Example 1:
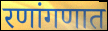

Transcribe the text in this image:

रणांगणात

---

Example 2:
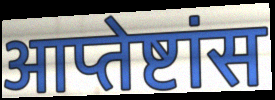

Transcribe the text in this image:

आप्तेष्टांस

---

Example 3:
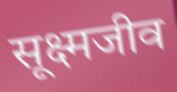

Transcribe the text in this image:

सूक्ष्मजीव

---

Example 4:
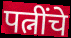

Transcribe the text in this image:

पत्नींचे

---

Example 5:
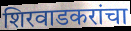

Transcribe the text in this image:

शिरवाडकरांचा